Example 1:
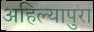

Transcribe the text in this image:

अहिल्यापुरा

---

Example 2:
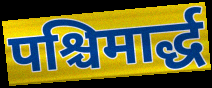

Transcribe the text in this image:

पश्चिमार्द्ध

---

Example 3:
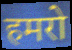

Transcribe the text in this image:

हमरो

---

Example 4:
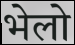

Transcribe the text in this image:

भेलो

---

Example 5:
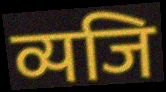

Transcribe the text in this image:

व्यजि